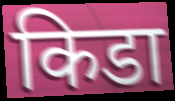
किडा